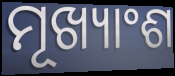
ମୂଖ୍ୟାଂଶ